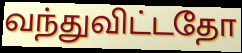
வந்துவிட்டதோ